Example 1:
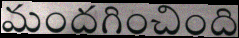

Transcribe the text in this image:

మందగించింది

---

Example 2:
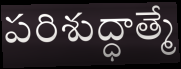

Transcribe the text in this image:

పరిశుద్ధాత్మే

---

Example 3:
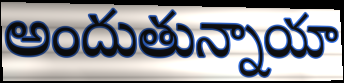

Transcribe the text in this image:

అందుతున్నాయా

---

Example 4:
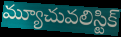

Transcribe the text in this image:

మ్యూచువలిస్టిక్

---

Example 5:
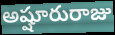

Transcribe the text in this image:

అష్షూరురాజు